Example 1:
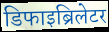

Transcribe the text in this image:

डिफाइब्रिलेटर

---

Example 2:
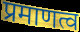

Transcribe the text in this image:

प्रमाणत्व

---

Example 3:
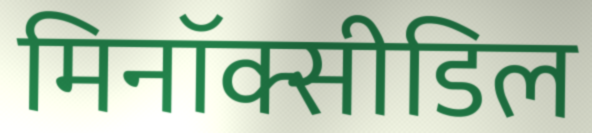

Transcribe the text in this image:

मिनॉक्सीडिल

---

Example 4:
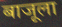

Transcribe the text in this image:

बाजूला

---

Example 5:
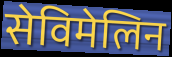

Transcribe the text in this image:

सेविमेलिन